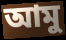
আমু